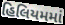
હિલિયમમાં